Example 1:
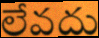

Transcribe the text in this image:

లేవదు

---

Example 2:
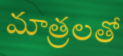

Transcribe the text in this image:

మాత్రలతో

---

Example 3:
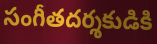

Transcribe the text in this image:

సంగీతదర్శకుడికి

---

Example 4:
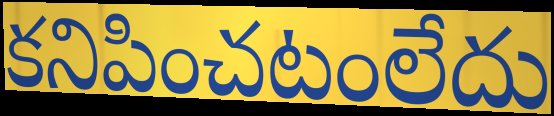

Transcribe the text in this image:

కనిపించటంలేదు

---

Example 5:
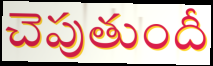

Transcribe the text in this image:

చెపుతుందీ